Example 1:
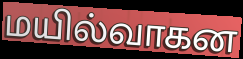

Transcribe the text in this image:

மயில்வாகன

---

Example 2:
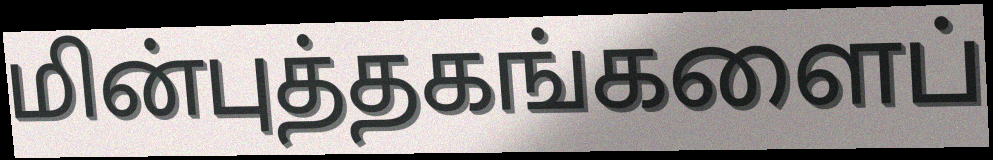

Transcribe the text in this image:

மின்புத்தகங்களைப்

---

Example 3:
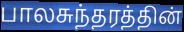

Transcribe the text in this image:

பாலசுந்தரத்தின்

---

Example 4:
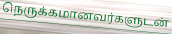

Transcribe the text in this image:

நெருக்கமானவர்களுடன்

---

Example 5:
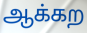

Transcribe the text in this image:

ஆக்கற